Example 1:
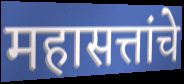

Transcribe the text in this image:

महासत्तांचे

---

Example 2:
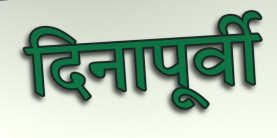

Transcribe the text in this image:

दिनापूर्वी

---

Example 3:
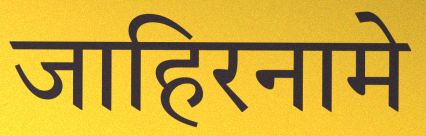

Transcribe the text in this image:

जाहिरनामे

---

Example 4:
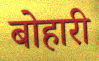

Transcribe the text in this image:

बोहारी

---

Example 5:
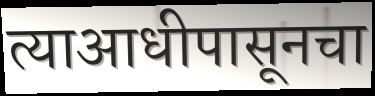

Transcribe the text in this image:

त्याआधीपासूनचा